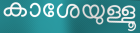
കാശേയുള്ളൂ